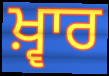
ਖ਼੍ਵਾਰ